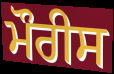
ਮੌਰੀਸ